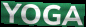
YOGA